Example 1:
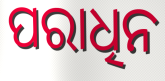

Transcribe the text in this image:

ପରାଧିନ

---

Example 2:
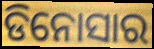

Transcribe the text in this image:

ଡିନୋସାର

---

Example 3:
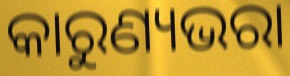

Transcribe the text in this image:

କାରୁଣ୍ୟଭରା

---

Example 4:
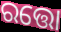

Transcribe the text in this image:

ରତ୍ତୋ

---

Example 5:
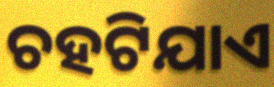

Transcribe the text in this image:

ଚହଟିଯାଏ